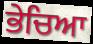
ਭੇਚਿਆ